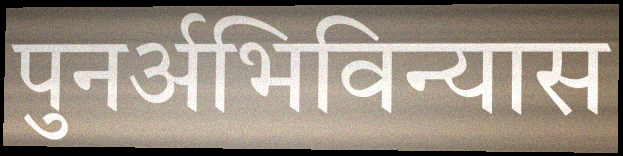
पुनर्अभिविन्यास